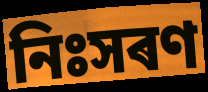
নিঃসৰণ